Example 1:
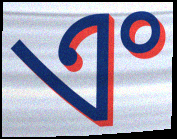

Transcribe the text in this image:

ଏଂ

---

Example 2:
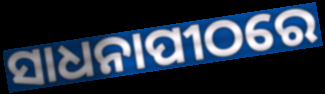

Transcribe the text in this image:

ସାଧନାପୀଠରେ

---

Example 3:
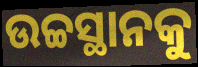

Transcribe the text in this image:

ଉଚ୍ଚସ୍ଥାନକୁ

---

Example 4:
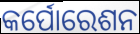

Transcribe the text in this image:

କର୍ପୋରେଶନ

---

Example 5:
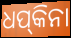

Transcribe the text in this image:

ଧପ୍‍କିନା